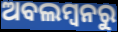
ଅବଲମ୍ବନରୁ